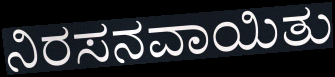
ನಿರಸನವಾಯಿತು